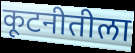
कूटनीतीला